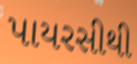
પાયરસીથી